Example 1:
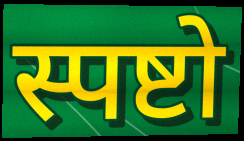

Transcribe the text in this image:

स्पष्टो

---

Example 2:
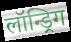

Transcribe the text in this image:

लॉन्ड्रिग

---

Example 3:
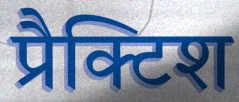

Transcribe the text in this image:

प्रैक्टिश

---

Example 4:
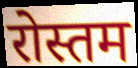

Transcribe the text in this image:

रोस्तम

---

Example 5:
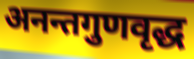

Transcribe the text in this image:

अनन्तगुणवृद्ध